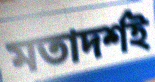
মতাদৰ্শই